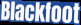
Blackfoot